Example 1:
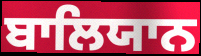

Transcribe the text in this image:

ਬਾਲਿਯਾਨ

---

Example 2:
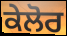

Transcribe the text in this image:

ਕੇਲੋਰ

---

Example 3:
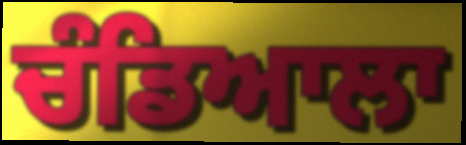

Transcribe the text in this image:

ਚੰਡਿਆਲਾ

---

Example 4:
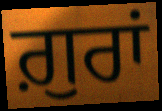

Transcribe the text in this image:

ਗ਼ੁਰਾਂ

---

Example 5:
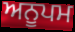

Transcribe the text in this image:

ਅਨੂਪਮ